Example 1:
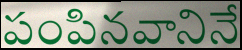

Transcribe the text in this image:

పంపినవానినే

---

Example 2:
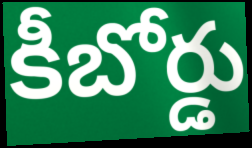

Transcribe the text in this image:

కీబోర్డు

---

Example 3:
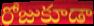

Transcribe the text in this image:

రోజుకూడా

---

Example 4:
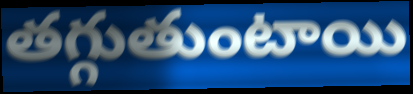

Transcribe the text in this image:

తగ్గుతుంటాయి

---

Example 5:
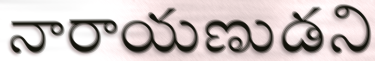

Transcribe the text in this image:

నారాయణుడని